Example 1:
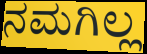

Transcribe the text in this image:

ನಮಗಿಲ್ಲ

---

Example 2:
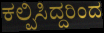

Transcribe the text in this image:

ಕಲ್ಪಿಸಿದ್ದರಿಂದ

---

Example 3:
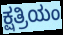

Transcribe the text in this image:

ಕ್ಷತ್ರಿಯಂ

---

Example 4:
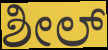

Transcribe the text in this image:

ಶೀಲ್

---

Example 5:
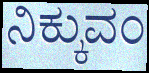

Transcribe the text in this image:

ನಿಕ್ಕುವಂ